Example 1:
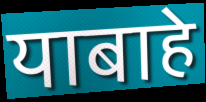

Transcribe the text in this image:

याबाहे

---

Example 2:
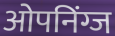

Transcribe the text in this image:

ओपनिंग्ज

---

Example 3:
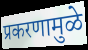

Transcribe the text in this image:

प्रकरणामुळे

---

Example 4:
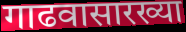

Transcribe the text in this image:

गाढवासारख्या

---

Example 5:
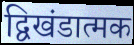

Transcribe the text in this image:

द्विखंडात्मक